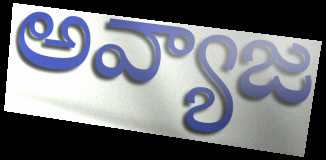
అవ్యాజ